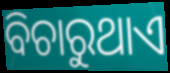
ବିଚାରୁଥାଏ